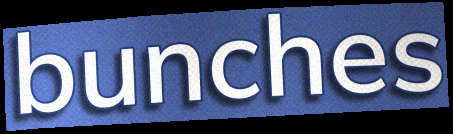
bunches